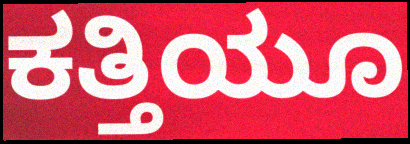
ಕತ್ತಿಯೂ